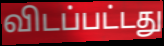
விடப்பட்டது